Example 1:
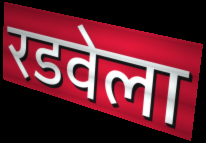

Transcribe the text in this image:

रडवेला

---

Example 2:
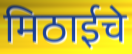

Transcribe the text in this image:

मिठाईचे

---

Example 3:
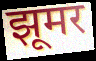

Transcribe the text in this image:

झूमर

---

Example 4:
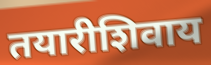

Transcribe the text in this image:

तयारीशिवाय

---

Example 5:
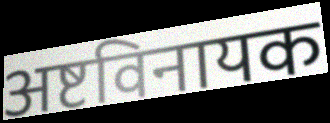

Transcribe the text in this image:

अष्टविनायक